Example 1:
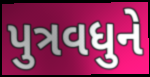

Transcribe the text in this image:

પુત્રવધુને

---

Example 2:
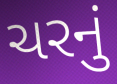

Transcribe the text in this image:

ચરનું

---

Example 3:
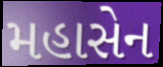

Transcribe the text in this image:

મહાસેન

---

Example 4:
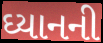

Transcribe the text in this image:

ઘ્યાનની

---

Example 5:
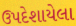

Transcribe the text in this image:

ઉપદેશાયેલા